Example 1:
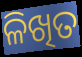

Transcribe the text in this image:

ଳିଖିତ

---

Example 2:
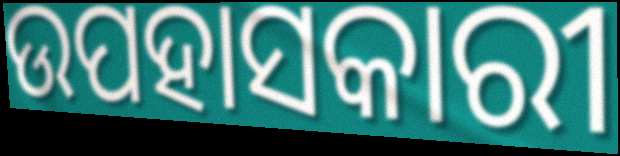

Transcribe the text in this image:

ଉପହାସକାରୀ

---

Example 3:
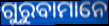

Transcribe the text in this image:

ଗୁରୁବାମାନେ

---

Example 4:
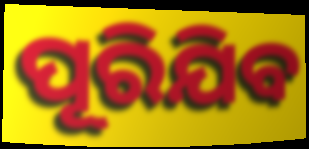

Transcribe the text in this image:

ପୂରିଯିବ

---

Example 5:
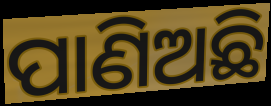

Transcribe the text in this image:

ପାଣିଅଛି